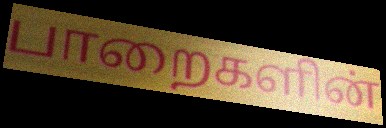
பாறைகளின்